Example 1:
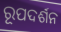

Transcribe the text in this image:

ରୂପଦର୍ଶନ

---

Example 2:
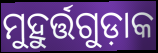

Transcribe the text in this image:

ମୁହୁର୍ତ୍ତଗୁଡ଼ାକ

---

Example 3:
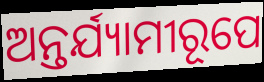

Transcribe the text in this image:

ଅନ୍ତର୍ଯ୍ୟାମୀରୂପେ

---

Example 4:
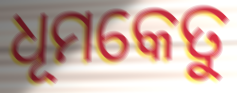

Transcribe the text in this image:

ଧୂମକେତୁ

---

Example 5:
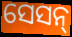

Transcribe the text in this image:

ସେସନ୍